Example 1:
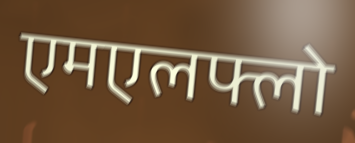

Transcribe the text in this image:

एमएलफ्लो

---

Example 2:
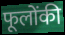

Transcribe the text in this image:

फूलोंकी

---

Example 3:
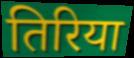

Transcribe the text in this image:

तिरिया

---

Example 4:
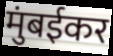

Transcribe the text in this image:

मुंबईकर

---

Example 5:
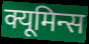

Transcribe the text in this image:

क्यूमिन्स